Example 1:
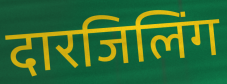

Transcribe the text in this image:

दारजिलिंग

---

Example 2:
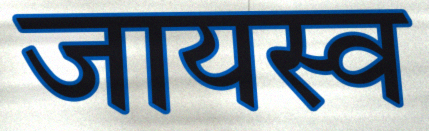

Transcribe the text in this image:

जायस्व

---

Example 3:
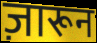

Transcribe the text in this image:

ज़ारून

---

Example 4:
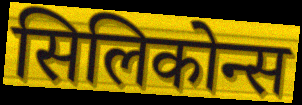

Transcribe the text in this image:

सिलिकोन्स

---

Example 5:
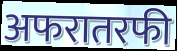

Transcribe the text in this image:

अफरातरफी